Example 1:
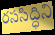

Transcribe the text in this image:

రససిద్ధిని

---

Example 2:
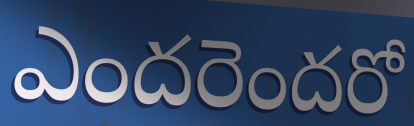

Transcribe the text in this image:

ఎందరెందరో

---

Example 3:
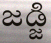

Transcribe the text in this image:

జడ్జి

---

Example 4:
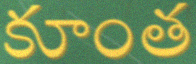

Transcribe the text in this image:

కూంత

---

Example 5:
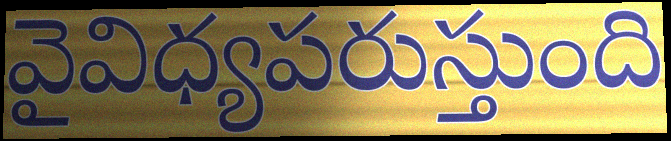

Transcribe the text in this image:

వైవిధ్యపరుస్తుంది